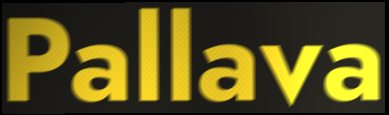
Pallava